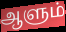
ஆளும்